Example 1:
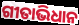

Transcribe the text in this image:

ଗୀତାଭିଧାନ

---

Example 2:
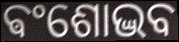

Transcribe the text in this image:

ଵଂଶୋଦ୍ଭବ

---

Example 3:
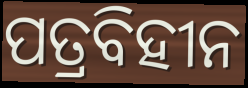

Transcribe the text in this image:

ପତ୍ରବିହୀନ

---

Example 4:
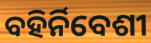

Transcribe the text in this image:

ବହିର୍ନିବେଶୀ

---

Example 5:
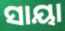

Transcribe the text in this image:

ସାୟା